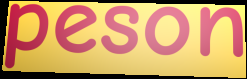
peson